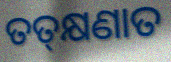
ତତ୍‍କ୍ଷଣାତ